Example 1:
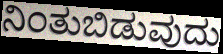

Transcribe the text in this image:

ನಿಂತುಬಿಡುವುದು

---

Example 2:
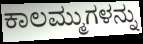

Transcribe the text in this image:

ಕಾಲಮ್ಮುಗಳನ್ನು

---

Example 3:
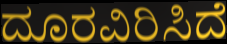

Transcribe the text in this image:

ದೂರವಿರಿಸಿದೆ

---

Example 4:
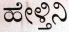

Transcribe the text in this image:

ಹೇಳ್ತಿನಿ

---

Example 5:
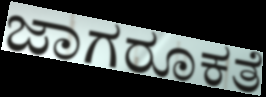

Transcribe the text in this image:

ಜಾಗರೂಕತೆ